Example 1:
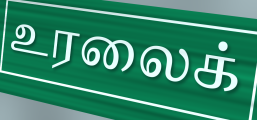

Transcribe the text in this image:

உரலைக்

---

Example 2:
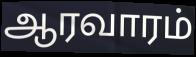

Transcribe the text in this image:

ஆரவாரம்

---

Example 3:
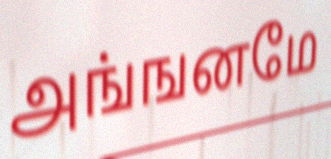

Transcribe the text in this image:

அங்ஙனமே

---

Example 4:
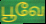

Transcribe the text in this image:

பூவே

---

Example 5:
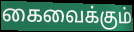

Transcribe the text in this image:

கைவைக்கும்